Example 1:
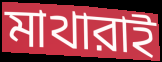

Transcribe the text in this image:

মাথারাই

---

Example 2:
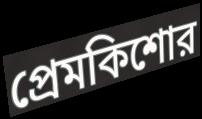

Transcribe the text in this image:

প্রেমকিশোর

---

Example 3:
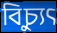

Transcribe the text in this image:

বিচ্যুৎ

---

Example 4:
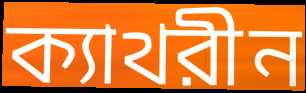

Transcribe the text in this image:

ক্যাথরীন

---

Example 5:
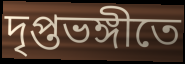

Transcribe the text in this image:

দৃপ্তভঙ্গীতে